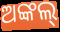
ଅଙ୍କଲ୍